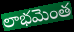
లాభమెంత